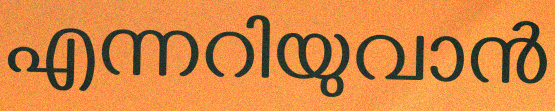
എന്നറിയുവാൻ